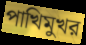
পাখিমুখর